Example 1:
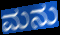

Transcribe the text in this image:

ಮನು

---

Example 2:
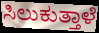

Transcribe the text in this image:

ಸಿಲುಕುತ್ತಾಳೆ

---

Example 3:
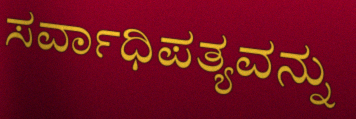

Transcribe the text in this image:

ಸರ್ವಾಧಿಪತ್ಯವನ್ನು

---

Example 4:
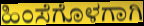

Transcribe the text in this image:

ಹಿಂಸೆಗೊಳಗಾಗಿ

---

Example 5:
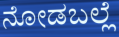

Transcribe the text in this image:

ನೋಡಬಲ್ಲೆ